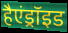
हैएंड्रॉइड